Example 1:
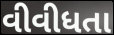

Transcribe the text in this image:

વીવીધતા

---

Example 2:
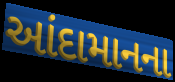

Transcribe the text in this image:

આંદામાનના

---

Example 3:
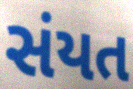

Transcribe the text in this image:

સંયત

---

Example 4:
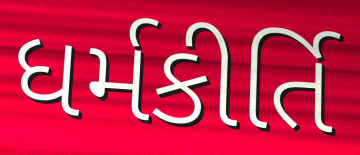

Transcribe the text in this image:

ધર્મકીર્તિ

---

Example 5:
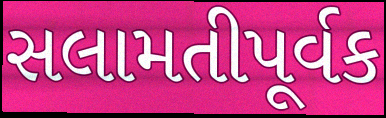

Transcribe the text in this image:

સલામતીપૂર્વક